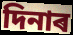
দিনাৰ